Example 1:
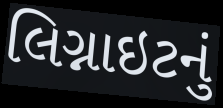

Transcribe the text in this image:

લિગ્નાઇટનું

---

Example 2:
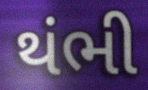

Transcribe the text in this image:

થંભી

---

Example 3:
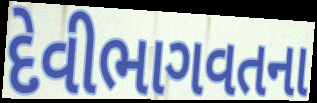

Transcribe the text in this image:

દેવીભાગવતના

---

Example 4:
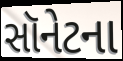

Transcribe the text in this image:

સૉનેટના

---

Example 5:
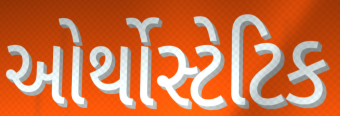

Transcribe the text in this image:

ઓર્થોસ્ટેટિક